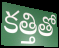
కత్తితో